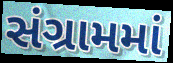
સંગ્રામમાં